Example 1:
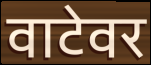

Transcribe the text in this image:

वाटेवर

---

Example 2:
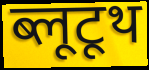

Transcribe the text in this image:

ब्लूटूथ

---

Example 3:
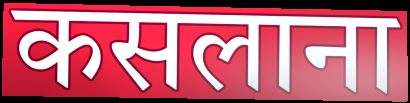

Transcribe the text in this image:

कसलाना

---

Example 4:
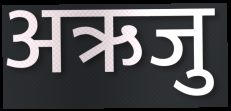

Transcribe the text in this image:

अऋजु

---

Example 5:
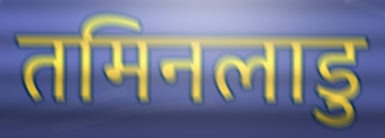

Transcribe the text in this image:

तमिनलाडु